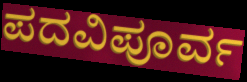
ಪದವಿಪೂರ್ವ